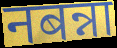
नबन्ना